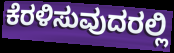
ಕೆರಳಿಸುವುದರಲ್ಲಿ